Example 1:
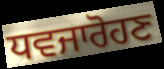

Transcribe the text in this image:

ਧਵਜਾਰੋਹਣ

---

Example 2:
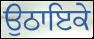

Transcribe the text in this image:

ਉਠਾਇਕੇ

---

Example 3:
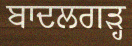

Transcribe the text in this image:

ਬਾਦਲਗੜ੍ਹ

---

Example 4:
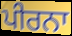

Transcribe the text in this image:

ਪੀਰਨਾ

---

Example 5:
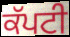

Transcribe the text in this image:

ਕੱਪਟੀ